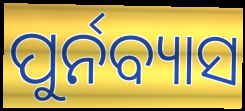
ପୁର୍ନବ୍ୟାସ